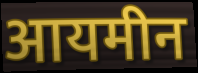
आयमीन